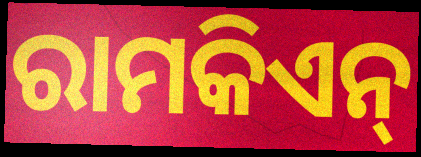
ରାମକିଏନ୍